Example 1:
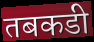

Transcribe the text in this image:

तबकडी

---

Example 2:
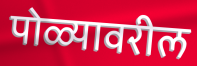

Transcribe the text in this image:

पोळ्यावरील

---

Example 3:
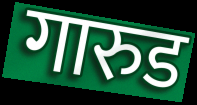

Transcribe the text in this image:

गारुड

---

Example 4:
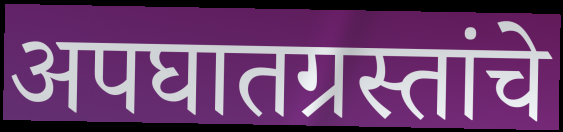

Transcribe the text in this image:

अपघातग्रस्तांचे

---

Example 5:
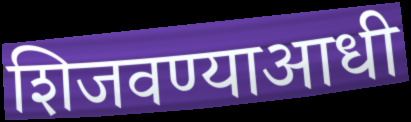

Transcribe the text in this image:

शिजवण्याआधी